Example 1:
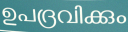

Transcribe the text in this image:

ഉപദ്രവിക്കും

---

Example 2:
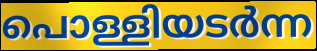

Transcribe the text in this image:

പൊള്ളിയടർന്ന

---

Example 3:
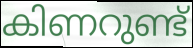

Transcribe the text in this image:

കിണറുണ്ട്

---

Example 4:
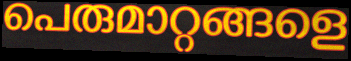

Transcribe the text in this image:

പെരുമാറ്റങ്ങളെ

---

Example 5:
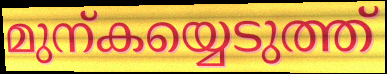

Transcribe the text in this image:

മുന്കയ്യെടുത്ത്